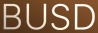
BUSD